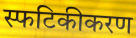
स्फटिकीकरण